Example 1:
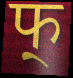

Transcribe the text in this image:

फ्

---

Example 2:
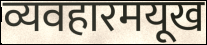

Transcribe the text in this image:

व्यवहारमयूख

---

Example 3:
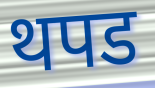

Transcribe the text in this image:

थपड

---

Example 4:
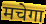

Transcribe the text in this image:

मचेगा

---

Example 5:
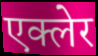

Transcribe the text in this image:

एक्लेर